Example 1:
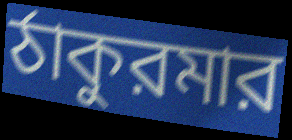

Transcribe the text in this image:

ঠাকুরমার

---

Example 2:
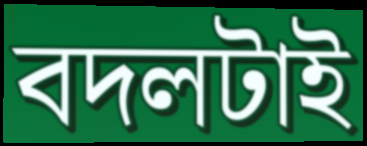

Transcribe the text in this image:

বদলটাই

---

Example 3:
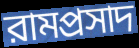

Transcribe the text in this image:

রামপ্রসাদ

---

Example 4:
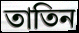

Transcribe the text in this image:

তাতিন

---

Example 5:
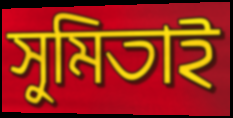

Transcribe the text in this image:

সুমিতাই